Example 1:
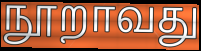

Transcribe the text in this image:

நூறாவது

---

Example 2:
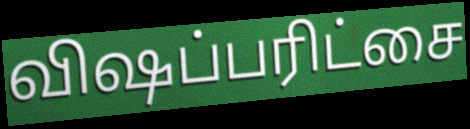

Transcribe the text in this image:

விஷப்பரிட்சை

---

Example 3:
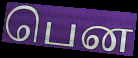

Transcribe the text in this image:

பென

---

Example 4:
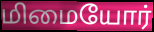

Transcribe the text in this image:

மிமையோர்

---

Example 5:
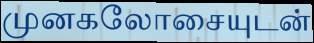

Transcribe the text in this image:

முனகலோசையுடன்